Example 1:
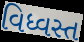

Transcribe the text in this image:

વિધ્વસ્ત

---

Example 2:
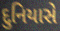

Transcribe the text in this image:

દુનિયાસે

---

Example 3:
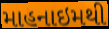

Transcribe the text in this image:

માહનાઇમથી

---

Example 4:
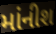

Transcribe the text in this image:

માંનીશ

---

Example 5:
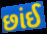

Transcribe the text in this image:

છાંઈ